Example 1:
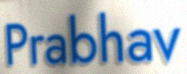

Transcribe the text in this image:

Prabhav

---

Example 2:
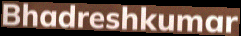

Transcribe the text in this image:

Bhadreshkumar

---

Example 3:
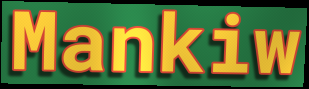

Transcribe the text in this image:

Mankiw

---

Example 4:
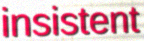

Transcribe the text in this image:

insistent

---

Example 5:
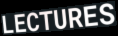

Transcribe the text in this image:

LECTURES